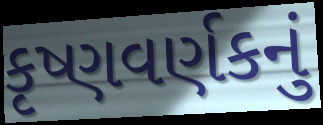
કૃષ્ણવર્ણકનું